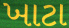
ખાટા